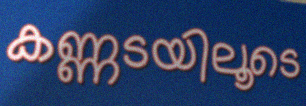
കണ്ണടയിലൂടെ